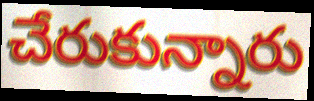
చేరుకున్నారు